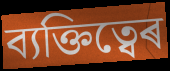
ব্যক্তিত্বেৰ